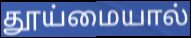
தூய்மையால்